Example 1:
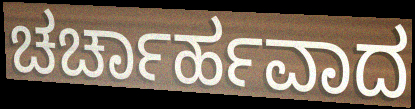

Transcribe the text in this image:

ಚರ್ಚಾರ್ಹವಾದ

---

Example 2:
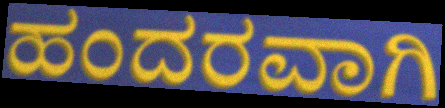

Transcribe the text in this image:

ಹಂದರವಾಗಿ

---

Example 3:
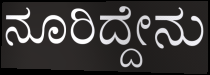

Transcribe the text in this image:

ನೂರಿದ್ದೇನು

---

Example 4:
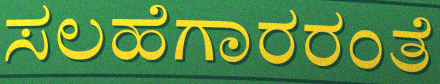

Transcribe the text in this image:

ಸಲಹೆಗಾರರಂತೆ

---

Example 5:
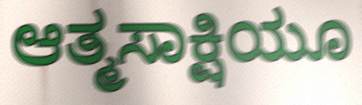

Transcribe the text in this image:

ಆತ್ಮಸಾಕ್ಷಿಯೂ